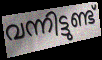
വന്നിട്ടുണ്ട്